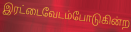
இரட்டைவேடம்போடுகின்ற